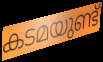
കടമയുണ്ട്